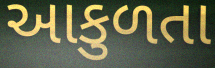
આકુળતા